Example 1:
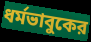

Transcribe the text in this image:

ধর্মভাবুকের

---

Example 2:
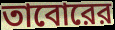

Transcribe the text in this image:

তাবোরের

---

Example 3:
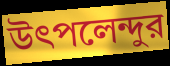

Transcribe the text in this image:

উৎপলেন্দুর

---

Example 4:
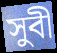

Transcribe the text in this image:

সুবী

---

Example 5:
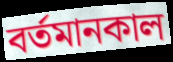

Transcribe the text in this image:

বর্তমানকাল